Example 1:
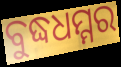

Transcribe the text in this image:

ବୁଦ୍ଧଧମ୍ମର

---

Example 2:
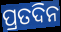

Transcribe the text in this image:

ପ୍ରତଦିନ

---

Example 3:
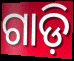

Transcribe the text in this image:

ଗାଡ଼ି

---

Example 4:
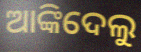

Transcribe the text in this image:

ଆଙ୍କିଦେଲୁ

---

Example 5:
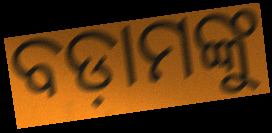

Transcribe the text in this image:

ବଡ଼ାମଙ୍କୁ